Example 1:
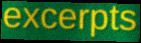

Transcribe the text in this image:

excerpts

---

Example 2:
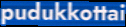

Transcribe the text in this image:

pudukkottai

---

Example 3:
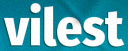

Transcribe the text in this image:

vilest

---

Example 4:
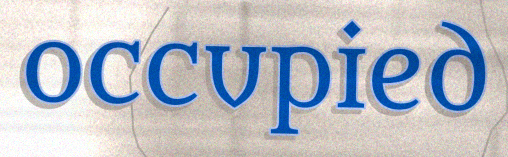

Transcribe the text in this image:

occupied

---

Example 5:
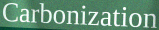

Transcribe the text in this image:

Carbonization